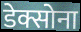
डेक्सोना